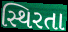
સ્થિરતા